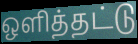
ஒளித்தட்டு